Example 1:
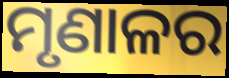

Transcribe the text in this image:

ମୃଣାଳର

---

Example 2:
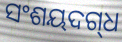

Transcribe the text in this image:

ସଂଶୟଦଗ୍‌ଧ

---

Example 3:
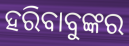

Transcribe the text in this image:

ହରିବାବୁଙ୍କର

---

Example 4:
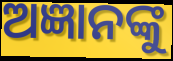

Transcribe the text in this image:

ଅଜ୍ଞାନଙ୍କୁ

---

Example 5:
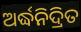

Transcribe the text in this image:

ଅର୍ଦ୍ଧନିଦ୍ରିତ